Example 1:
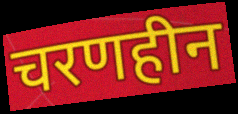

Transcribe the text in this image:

चरणहीन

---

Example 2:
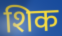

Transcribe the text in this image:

शिक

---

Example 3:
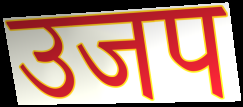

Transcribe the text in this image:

उजप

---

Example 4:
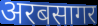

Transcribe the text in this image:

अरबसागर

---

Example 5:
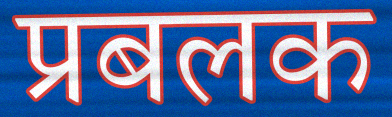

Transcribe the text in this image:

प्रबलक